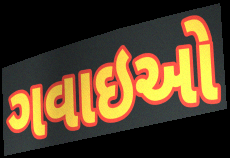
ગવાઇઓ